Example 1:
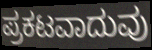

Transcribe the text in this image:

ಪ್ರಕಟವಾದುವು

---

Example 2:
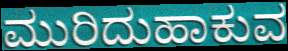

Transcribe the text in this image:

ಮುರಿದುಹಾಕುವ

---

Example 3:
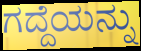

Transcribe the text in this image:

ಗದ್ದೆಯನ್ನು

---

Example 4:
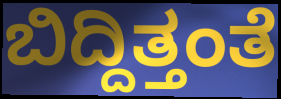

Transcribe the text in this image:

ಬಿದ್ದಿತ್ತಂತೆ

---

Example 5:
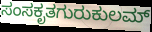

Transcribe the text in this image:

ಸಂಸಕೃತಗುರುಕುಲಮ್